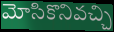
మోసికొనివచ్చి